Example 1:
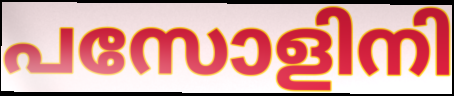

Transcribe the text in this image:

പസോളിനി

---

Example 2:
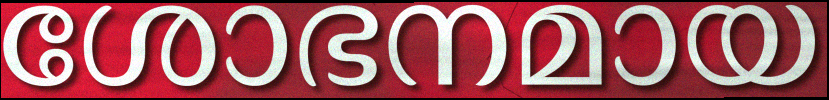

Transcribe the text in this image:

ശോഭനമായ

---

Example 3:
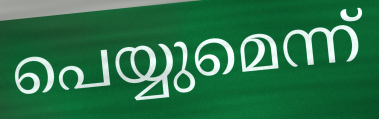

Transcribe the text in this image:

പെയ്യുമെന്ന്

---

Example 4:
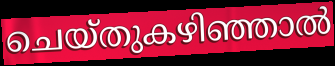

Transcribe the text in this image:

ചെയ്തുകഴിഞ്ഞാൽ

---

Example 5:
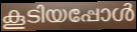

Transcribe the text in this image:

കൂടിയപ്പോൾ